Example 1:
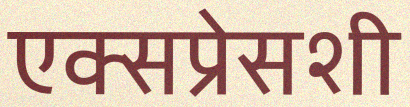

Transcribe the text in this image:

एक्सप्रेसशी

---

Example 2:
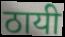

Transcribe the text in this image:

ठायी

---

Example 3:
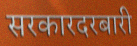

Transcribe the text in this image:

सरकारदरबारी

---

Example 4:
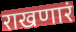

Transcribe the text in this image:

राखणारं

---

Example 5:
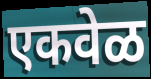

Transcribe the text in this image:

एकवेळ